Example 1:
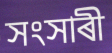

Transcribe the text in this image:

সংসাৰী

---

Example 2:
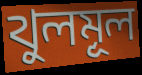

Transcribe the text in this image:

থুলমূল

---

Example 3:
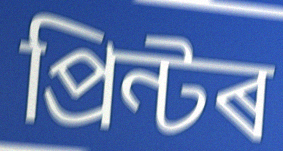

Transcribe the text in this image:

প্ৰিন্টৰ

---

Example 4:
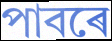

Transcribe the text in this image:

পাবৰে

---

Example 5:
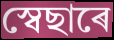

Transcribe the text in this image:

স্বেছাৰে